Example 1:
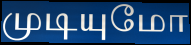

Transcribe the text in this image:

முடியுமோ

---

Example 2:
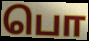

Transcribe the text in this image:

பொ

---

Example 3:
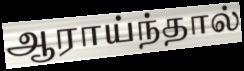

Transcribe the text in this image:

ஆராய்ந்தால்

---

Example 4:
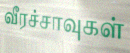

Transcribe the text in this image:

வீரச்சாவுகள்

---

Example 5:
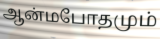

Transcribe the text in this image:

ஆன்மபோதமும்